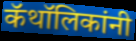
कॅथॉलिकांनी